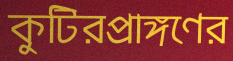
কুটিরপ্রাঙ্গণের